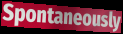
Spontaneously